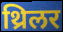
थ्रिलर